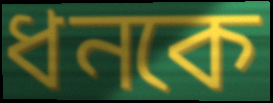
ধনকে